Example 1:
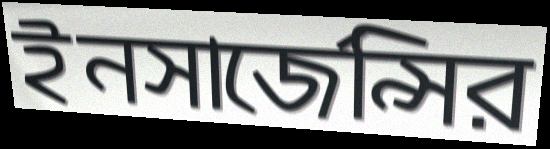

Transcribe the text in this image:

ইনসার্জেন্সির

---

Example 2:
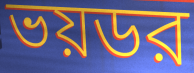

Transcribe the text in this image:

ভয়ডর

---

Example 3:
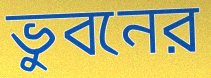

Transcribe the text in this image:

ভুবনের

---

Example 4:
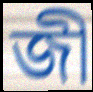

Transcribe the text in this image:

জী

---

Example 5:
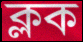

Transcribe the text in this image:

ক্লক